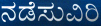
ನಡೆಸುವಿರಿ